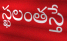
స్ఖలంతస్తే